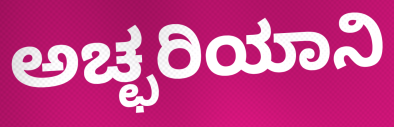
ಅಚ್ಛರಿಯಾನಿ